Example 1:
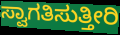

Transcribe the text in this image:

ಸ್ವಾಗತಿಸುತ್ತೀರಿ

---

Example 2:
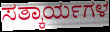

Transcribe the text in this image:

ಸತ್ಕಾರ್ಯಗಳ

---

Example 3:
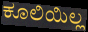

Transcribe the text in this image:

ಕೂಲಿಯಿಲ್ಲ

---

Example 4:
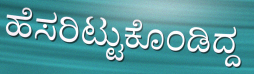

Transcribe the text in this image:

ಹೆಸರಿಟ್ಟುಕೊಂಡಿದ್ದ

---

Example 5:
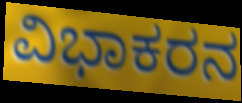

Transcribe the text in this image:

ವಿಭಾಕರನ